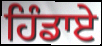
ਹਿੰਡਾਏ